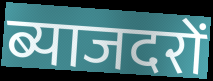
ब्याजदरों